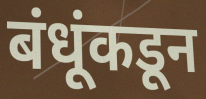
बंधूंकडून